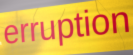
erruption